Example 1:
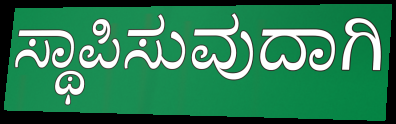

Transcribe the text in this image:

ಸ್ಥಾಪಿಸುವುದಾಗಿ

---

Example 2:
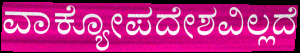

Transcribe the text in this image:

ವಾಕ್ಯೋಪದೇಶವಿಲ್ಲದೆ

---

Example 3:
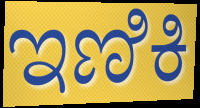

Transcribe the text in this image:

ಇಣಿಕಿ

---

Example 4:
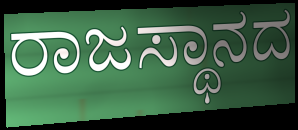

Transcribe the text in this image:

ರಾಜಸ್ಥಾನದ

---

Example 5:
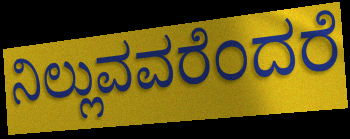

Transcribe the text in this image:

ನಿಲ್ಲುವವರೆಂದರೆ